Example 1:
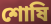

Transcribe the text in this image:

শোষি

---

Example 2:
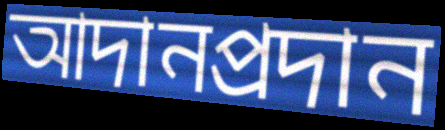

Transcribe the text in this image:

আদানপ্রদান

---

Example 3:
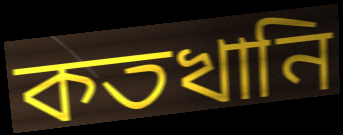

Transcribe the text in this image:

কতখানি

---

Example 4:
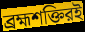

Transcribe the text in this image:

ব্রহ্মশক্তিরই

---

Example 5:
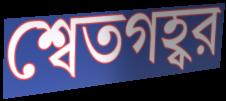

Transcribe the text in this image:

শ্বেতগহ্বর